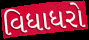
વિધાધરો